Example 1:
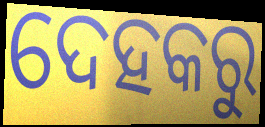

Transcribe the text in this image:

ଦେହକରୁ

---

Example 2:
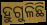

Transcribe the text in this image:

ହୁଗୁଳିଛି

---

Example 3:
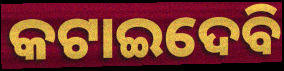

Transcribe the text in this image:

କଟାଇଦେବି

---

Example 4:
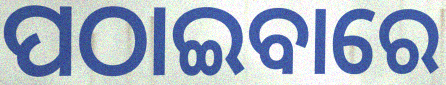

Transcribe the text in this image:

ପଠାଇବାରେ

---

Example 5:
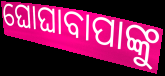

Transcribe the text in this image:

ଘୋଘାବାପାଙ୍କୁ